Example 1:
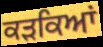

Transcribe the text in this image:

ਕੜਕਿਆਂ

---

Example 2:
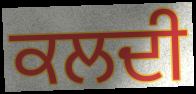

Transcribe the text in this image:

ਕਲਦੀ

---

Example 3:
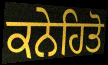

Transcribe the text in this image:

ਕਨੇਹਿਤੋ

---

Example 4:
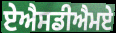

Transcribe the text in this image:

ਏਐਸਡੀਐਮਏ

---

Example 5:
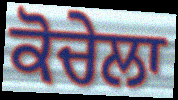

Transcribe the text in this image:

ਕੋਚੇਲਾ